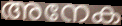
അനേക